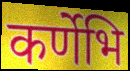
कर्णेभि